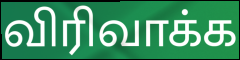
விரிவாக்க